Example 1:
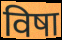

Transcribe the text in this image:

विषा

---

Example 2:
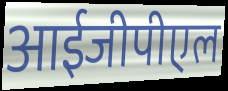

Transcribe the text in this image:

आईजीपीएल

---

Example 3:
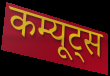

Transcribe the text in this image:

कम्यूट्स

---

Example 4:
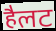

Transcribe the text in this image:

हैलट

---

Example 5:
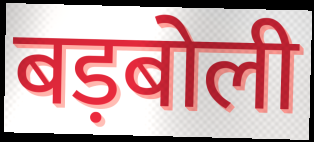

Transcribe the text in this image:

बड़बोली